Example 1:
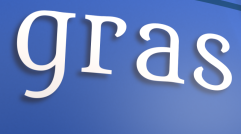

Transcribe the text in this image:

gras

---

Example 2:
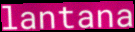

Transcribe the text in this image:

lantana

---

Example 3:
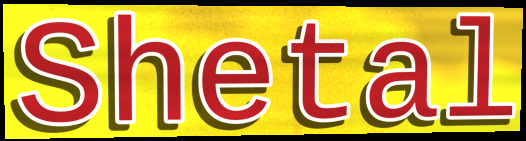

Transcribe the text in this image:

Shetal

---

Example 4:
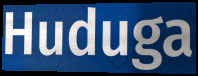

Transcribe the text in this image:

Huduga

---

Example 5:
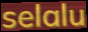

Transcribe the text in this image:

selalu